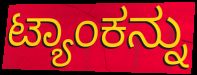
ಟ್ಯಾಂಕನ್ನು